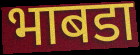
भाबडा